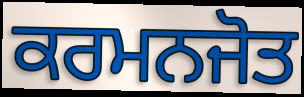
ਕਰਮਨਜੋਤ